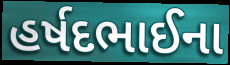
હર્ષદભાઈના